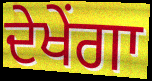
ਦੇਖੇਂਗਾ